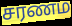
சரணம